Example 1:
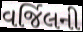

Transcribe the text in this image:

વર્જિલની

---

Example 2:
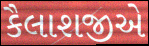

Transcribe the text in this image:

કૈલાશજીએ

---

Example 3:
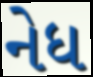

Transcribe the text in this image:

નેધ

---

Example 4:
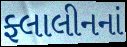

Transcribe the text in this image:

ફ્લાલીનનાં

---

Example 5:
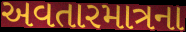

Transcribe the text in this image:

અવતારમાત્રના